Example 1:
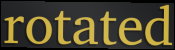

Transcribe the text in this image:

rotated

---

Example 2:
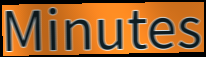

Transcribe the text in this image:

Minutes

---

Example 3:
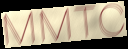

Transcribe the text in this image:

MMTC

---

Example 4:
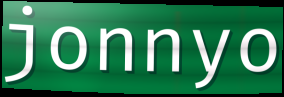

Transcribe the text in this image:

jonnyo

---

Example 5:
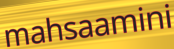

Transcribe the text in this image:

mahsaamini